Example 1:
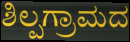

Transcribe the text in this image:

ಶಿಲ್ಪಗ್ರಾಮದ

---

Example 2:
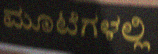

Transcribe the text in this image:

ಮೂಟೆಗಳಲ್ಲಿ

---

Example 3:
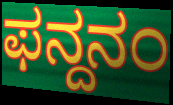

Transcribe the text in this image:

ಫನ್ದನಂ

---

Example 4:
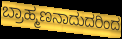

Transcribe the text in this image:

ಬ್ರಾಹ್ಮಣನಾದುದರಿಂದ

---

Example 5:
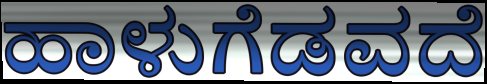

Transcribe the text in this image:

ಹಾಳುಗೆಡವದೆ